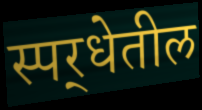
स्पर्धेतील